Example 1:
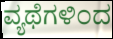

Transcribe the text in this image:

ವ್ಯಥೆಗಳಿಂದ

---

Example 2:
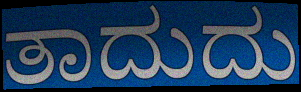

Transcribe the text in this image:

ತಾದುದು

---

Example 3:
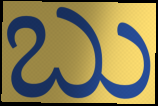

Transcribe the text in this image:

ಬು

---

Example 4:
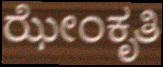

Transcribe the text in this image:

ಝೇಂಕೃತಿ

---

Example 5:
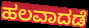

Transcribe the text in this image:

ಹಲವಾದಡೆ